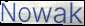
Nowak